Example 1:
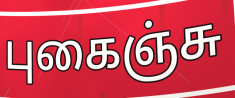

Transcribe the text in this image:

புகைஞ்சு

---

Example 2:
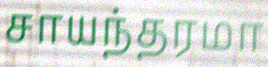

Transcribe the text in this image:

சாயந்தரமா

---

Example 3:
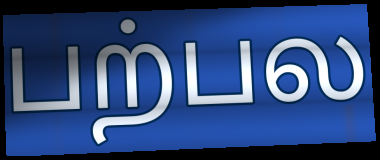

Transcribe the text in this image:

பற்பல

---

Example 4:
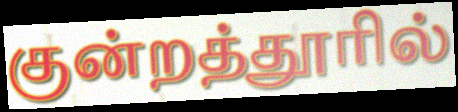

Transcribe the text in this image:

குன்றத்தூரில்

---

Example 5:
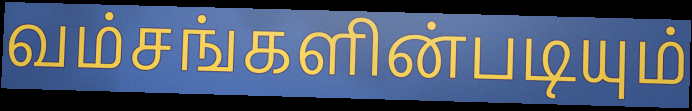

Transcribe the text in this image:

வம்சங்களின்படியும்